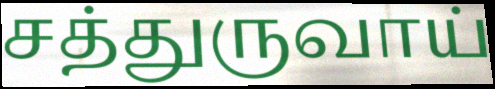
சத்துருவாய்